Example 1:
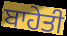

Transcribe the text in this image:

ਬਾਹੇਤੀ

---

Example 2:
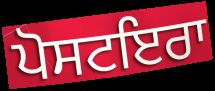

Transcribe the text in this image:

ਪੋਸਟਇਰਾ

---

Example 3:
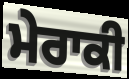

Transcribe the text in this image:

ਮੇਰਾਕੀ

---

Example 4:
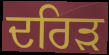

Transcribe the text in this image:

ਦਰਿੜ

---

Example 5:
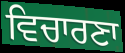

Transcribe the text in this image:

ਵਿਚਾਰਣਾ